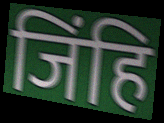
जिंहि